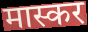
मास्कर